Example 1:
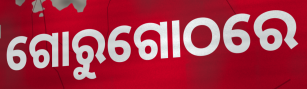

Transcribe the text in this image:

ଗୋରୁଗୋଠରେ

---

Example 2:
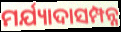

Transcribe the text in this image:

ମର୍ଯ୍ୟାଦାସମ୍ପନ୍ନ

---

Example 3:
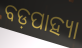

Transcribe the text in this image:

ବଡ଼ପାହ୍ୟା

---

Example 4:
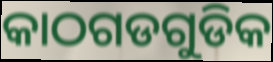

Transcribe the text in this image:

କାଠଗଡଗୁଡିକ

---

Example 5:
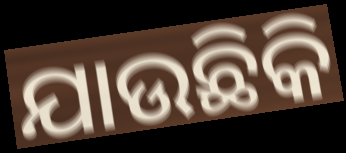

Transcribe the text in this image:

ଯାଉଛିକି